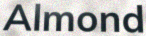
Almond